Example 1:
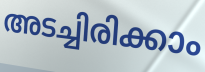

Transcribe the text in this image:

അടച്ചിരിക്കാം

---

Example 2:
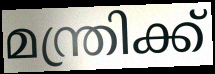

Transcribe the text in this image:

മന്ത്രിക്ക്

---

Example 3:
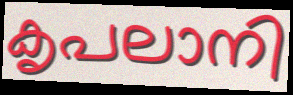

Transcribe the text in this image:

കൃപലാനി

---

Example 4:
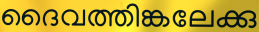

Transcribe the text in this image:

ദൈവത്തിങ്കലേക്കു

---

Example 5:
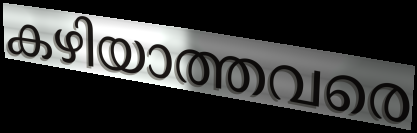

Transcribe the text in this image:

കഴിയാത്തവരെ